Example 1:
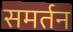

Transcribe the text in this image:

समर्तन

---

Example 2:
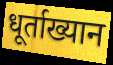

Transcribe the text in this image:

धूर्ताख्यान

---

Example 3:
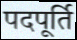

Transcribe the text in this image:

पदपूर्ति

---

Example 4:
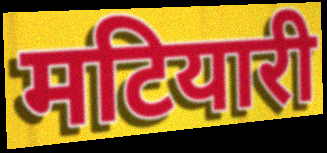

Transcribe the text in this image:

मटियारी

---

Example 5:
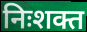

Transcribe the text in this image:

निःशक्त